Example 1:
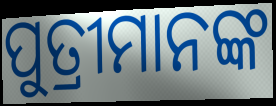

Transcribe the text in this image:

ପୁତ୍ରୀମାନଙ୍କ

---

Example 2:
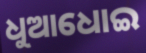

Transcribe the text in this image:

ଧୁଆଧୋଇ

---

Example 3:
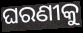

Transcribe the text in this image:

ଘରଣୀକୁ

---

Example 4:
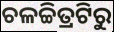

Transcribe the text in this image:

ଚଳଚ୍ଚିତ୍ରଟିରୁ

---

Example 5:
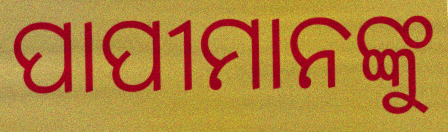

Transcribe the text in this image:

ପାପୀମାନଙ୍କୁ